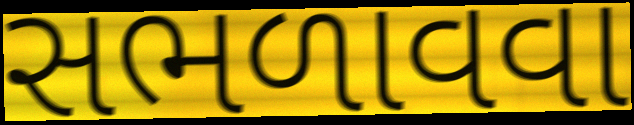
સભળાવવા